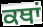
ਕਥਾਂ